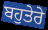
ਬਹੁਤੇਰੇ